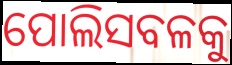
ପୋଲିସବଳକୁ